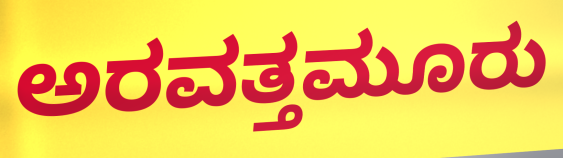
ಅರವತ್ತಮೂರು